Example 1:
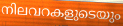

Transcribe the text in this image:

നിലവറകളുടെയും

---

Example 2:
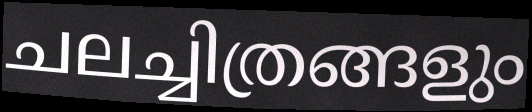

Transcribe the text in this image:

ചലച്ചിത്രങ്ങളും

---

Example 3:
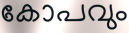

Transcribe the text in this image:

കോപവും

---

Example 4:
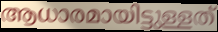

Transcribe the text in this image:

ആധാരമായിട്ടുള്ളത്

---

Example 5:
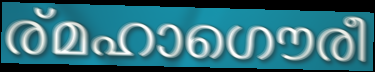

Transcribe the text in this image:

ര്മഹാഗൌരീ